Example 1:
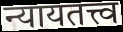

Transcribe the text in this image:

न्यायतत्त्व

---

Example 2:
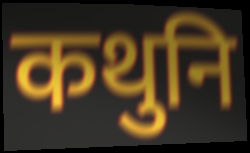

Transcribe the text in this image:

कथुनि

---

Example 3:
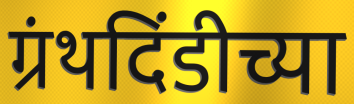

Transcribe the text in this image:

ग्रंथदिंडीच्या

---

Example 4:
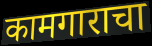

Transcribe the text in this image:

कामगाराचा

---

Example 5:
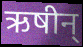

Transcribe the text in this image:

ऋषीन्